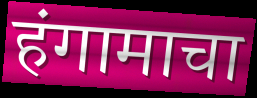
हंगामाचा